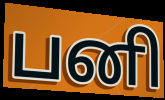
பனி